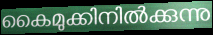
കൈമുക്കിനിൽക്കുന്നു